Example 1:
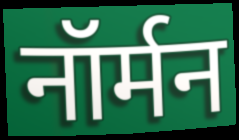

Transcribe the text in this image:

नॉर्मन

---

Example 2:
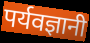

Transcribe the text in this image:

पर्यवज्ञानी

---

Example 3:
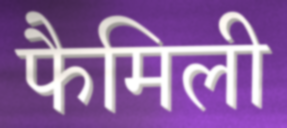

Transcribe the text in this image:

फैमिली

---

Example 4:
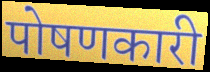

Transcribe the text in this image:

पोषणकारी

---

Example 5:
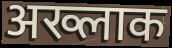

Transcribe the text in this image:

अख्लाक